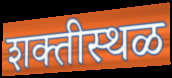
शक्तीस्थळ